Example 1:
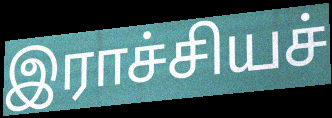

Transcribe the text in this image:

இராச்சியச்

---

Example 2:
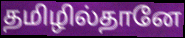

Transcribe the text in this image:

தமிழில்தானே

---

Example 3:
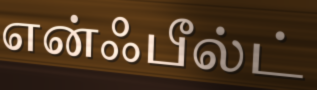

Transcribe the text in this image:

என்ஃபீல்ட்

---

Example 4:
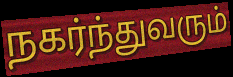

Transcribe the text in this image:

நகர்ந்துவரும்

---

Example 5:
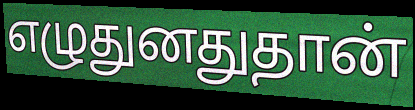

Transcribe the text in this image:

எழுதுனதுதான்